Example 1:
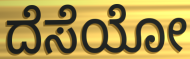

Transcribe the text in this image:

ದೆಸೆಯೋ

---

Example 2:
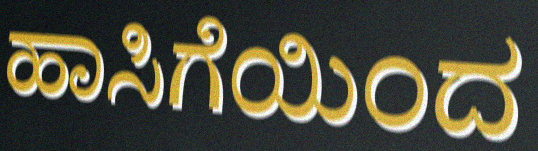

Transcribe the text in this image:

ಹಾಸಿಗೆಯಿಂದ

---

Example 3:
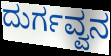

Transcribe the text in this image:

ದುರ್ಗವ್ವನ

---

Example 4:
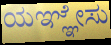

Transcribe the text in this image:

ಯಞ್ಞೇಸು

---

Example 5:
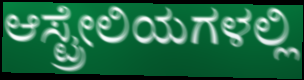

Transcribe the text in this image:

ಆಸ್ಟ್ರೇಲಿಯಗಳಲ್ಲಿ